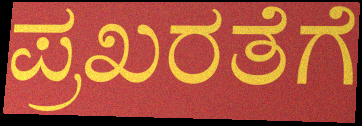
ಪ್ರಖರತೆಗೆ